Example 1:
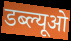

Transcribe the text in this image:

डब्ल्यूओ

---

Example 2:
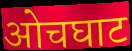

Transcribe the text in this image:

ओचघाट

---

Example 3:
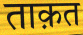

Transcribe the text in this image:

ताक़त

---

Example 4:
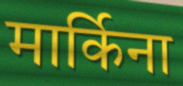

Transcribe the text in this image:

मार्किना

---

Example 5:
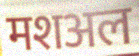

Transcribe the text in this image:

मशअल